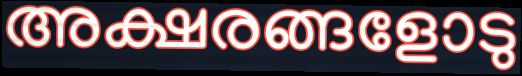
അക്ഷരങ്ങളോടു